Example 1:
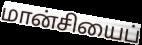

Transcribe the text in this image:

மான்சியைப்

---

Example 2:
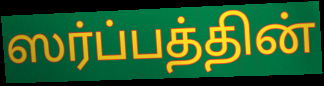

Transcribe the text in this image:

ஸர்ப்பத்தின்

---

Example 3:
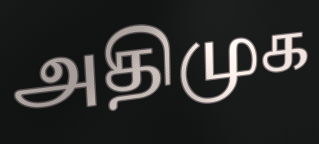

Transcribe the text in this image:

அதிமுக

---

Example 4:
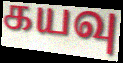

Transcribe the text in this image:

கயவு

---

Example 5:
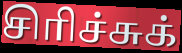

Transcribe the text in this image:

சிரிச்சுக்